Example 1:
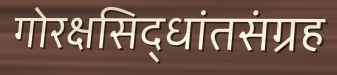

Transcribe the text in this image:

गोरक्षसिद्धांतसंग्रह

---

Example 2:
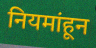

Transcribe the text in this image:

नियमांहून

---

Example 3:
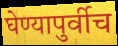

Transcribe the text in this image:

घेण्यापुर्वीच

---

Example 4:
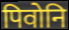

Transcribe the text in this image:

पिवोनि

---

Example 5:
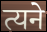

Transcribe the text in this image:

त्यने